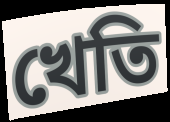
খেতি